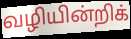
வழியின்றிக்